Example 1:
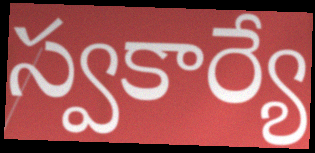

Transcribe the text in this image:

స్వకార్యే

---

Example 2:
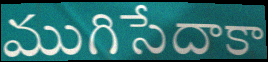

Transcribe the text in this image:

ముగిసేదాకా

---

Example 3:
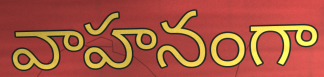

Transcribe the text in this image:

వాహనంగా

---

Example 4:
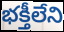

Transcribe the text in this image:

భక్తీలేని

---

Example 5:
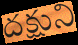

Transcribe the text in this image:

దక్షుని